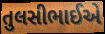
તુલસીભાઈએ